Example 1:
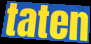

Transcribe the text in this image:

taten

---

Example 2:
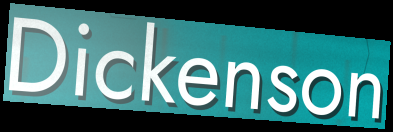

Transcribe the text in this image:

Dickenson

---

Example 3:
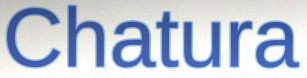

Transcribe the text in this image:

Chatura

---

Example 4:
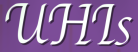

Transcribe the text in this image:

UHIs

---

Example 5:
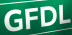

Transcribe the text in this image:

GFDL